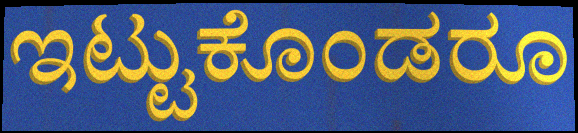
ಇಟ್ಟುಕೊಂಡರೂ